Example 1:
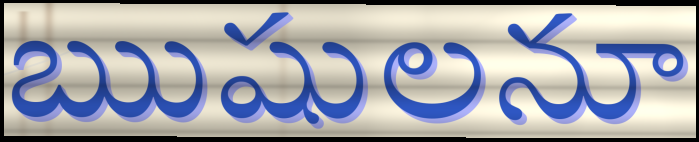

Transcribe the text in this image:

ఋషులనూ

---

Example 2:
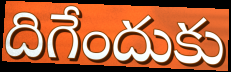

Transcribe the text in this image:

దిగేందుకు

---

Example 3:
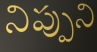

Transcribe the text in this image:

నిప్పుని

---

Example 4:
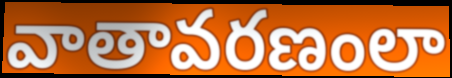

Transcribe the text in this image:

వాతావరణంలా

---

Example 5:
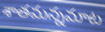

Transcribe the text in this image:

శాతమన్నమాట